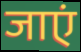
जाएं